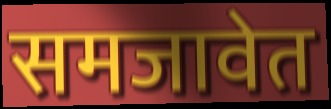
समजावेत